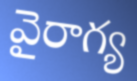
వైరాగ్య